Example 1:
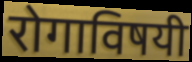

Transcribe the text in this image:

रोगाविषयी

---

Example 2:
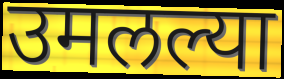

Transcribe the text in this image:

उमलल्या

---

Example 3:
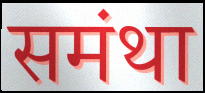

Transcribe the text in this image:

समंथा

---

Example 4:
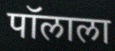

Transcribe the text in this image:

पॉलाला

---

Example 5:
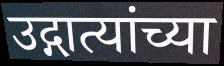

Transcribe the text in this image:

उद्गात्यांच्या